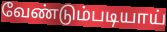
வேண்டும்படியாய்